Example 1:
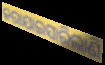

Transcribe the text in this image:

କରାଯାଇସାରିଲାଣି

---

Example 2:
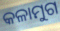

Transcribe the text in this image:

କଳାମୁଗ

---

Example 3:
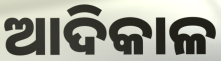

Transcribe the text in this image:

ଆଦିକାଳ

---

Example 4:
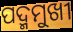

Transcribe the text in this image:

ପଦ୍ମମୁଖୀ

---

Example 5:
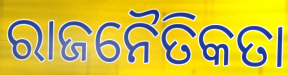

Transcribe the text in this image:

ରାଜନୈତିକତା